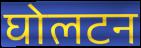
घोलटन